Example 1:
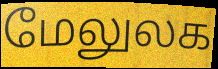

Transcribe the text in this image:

மேலுலக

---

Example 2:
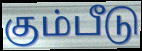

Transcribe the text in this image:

கும்பீடு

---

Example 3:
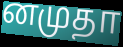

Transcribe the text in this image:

னமுதா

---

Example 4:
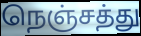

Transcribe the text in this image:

நெஞ்சத்து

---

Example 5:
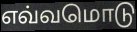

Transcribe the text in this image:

எவ்வமொடு